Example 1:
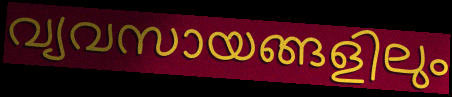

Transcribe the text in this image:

വ്യവസായങ്ങളിലും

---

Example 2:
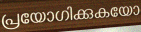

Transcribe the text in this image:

പ്രയോഗിക്കുകയോ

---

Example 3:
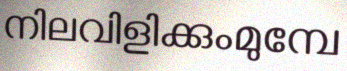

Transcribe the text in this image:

നിലവിളിക്കുംമുമ്പേ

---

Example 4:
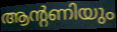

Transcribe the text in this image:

ആന്റണിയും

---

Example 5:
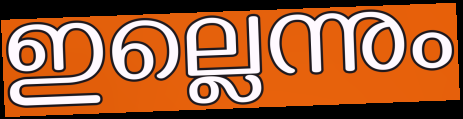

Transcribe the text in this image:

ഇല്ലെന്നും